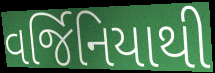
વર્જિનિયાથી